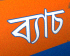
ব্যাচ